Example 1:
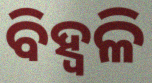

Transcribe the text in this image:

ବିହ୍ୱଳି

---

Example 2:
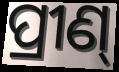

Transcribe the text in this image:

ପ୍ରୀଣ୍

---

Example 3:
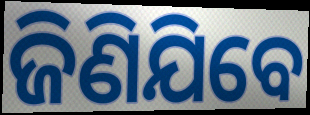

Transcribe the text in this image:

ଜିଣିଯିବେ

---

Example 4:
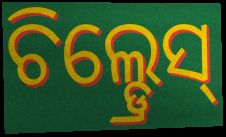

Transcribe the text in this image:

ଚିଲ୍ଡ୍ରେସ୍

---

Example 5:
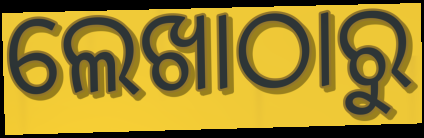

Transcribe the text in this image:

ଲେଖାଠାରୁ